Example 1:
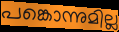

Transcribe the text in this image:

പങ്കൊന്നുമില്ല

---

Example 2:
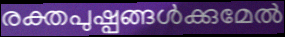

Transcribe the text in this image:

രക്തപുഷ്പങ്ങൾക്കുമേൽ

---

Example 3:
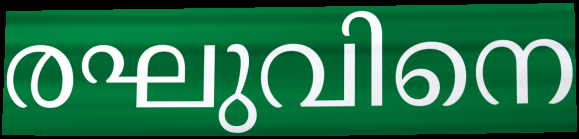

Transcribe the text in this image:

രഘുവിനെ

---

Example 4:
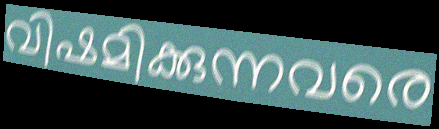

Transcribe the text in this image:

വിഷമിക്കുന്നവരെ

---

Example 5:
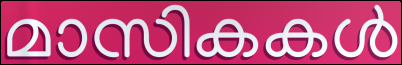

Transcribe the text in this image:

മാസികകൾ